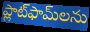
ప్లాట్‌ఫామ్‌లను